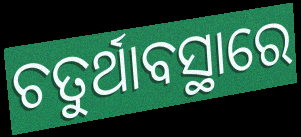
ଚତୁର୍ଥାବସ୍ଥାରେ